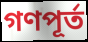
গণপূর্ত